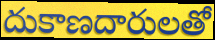
దుకాణదారులతో